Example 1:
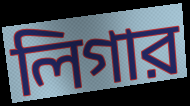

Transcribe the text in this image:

লিগার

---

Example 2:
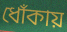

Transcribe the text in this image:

ধোঁকায়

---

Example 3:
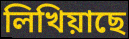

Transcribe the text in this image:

লিখিয়াছে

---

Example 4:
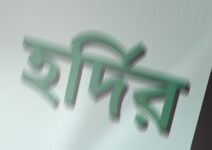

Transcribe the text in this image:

হর্দির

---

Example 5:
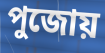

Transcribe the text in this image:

পুজোয়